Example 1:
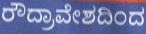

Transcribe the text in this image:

ರೌದ್ರಾವೇಶದಿಂದ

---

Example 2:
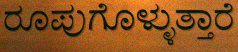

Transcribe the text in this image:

ರೂಪುಗೊಳ್ಳುತ್ತಾರೆ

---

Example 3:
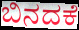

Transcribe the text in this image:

ಬಿನದಕೆ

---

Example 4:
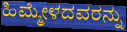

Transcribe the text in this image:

ಹಿಮ್ಮೇಳದವರನ್ನು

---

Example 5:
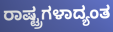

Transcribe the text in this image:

ರಾಷ್ಟ್ರಗಳಾದ್ಯಂತ